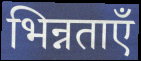
भिन्नताएँ